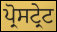
ਪ੍ਰੋਸਟ੍ਰੇਟ